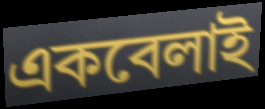
একবেলাই